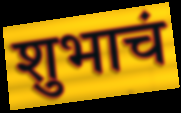
शुभाचं